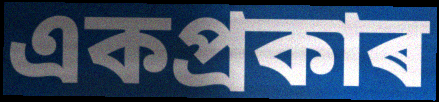
একপ্ৰকাৰ